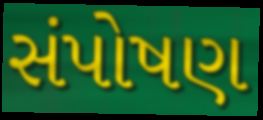
સંપોષણ